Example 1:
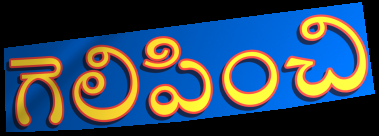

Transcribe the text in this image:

గెలిపించి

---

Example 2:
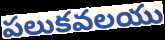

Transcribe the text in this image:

పలుకవలయు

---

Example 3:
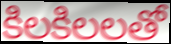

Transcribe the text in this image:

కిలకిలలతో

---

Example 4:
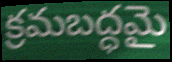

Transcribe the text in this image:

క్రమబద్ధమై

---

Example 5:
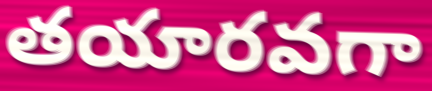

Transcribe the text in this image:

తయారవగా